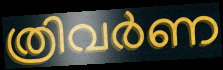
ത്രിവർണ